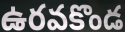
ఉరవకొండ